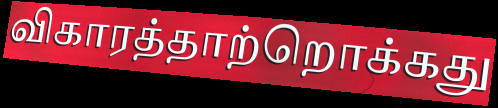
விகாரத்தாற்றொக்கது